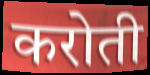
करोती